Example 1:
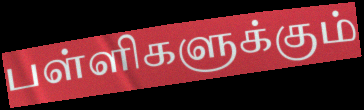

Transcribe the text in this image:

பள்ளிகளுக்கும்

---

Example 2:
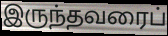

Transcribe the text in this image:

இருந்தவரைப்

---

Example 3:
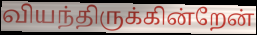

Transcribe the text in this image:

வியந்திருக்கின்றேன்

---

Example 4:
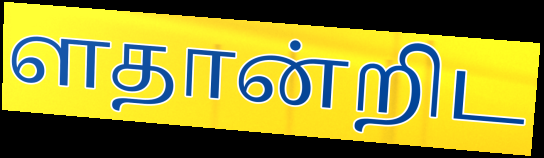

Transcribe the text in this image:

ளதான்றிட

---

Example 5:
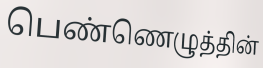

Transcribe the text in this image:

பெண்ணெழுத்தின்